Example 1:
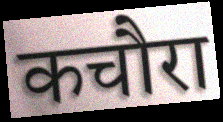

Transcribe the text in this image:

कचौरा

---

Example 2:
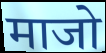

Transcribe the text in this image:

माजो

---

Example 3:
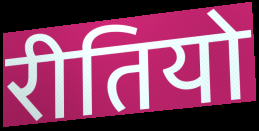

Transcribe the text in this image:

रीतियो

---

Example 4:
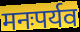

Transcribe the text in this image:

मनःपर्यव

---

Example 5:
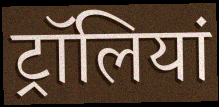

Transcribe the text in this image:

ट्रॉलियां